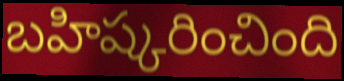
బహిష్కరించింది